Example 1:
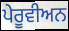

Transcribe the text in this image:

ਪੇਰੂਵੀਅਨ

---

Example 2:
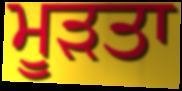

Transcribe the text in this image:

ਮੂੜਤਾ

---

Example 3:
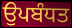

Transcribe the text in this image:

ਉਪਬੰਧਤ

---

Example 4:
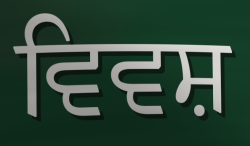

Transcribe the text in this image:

ਵਿਵਸ਼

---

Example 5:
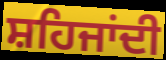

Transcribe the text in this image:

ਸ਼ਹਿਜਾਂਦੀ